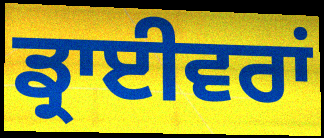
ਡ੍ਰਾਈਵਰਾਂ